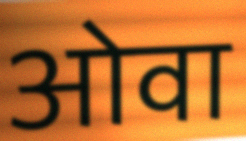
ओवा